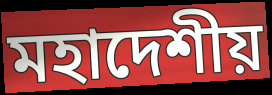
মহাদেশীয়